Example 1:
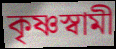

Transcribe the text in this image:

কৃষ্ণস্বামী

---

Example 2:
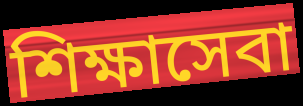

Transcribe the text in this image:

শিক্ষাসেবা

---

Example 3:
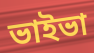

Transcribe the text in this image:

ভাইভা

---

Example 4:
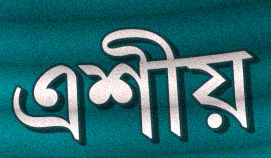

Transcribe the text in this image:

এশীয়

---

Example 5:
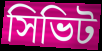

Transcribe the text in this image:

সিভিট